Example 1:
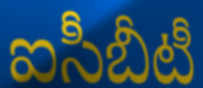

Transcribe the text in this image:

ఐసీబీటీ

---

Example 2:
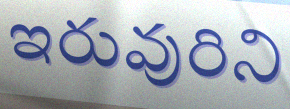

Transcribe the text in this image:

ఇరువురిని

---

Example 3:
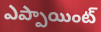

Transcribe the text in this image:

ఎప్పాయింట్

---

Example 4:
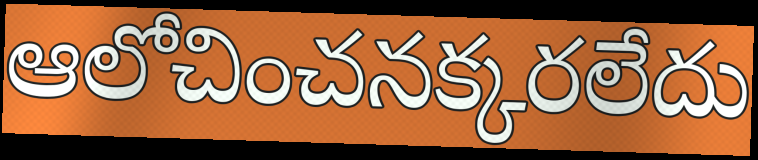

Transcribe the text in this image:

ఆలోచించనక్కరలేదు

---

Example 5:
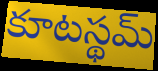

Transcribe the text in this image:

కూటస్థమ్